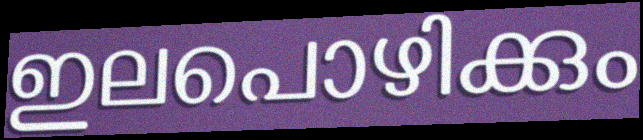
ഇലപൊഴിക്കും